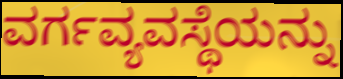
ವರ್ಗವ್ಯವಸ್ಥೆಯನ್ನು